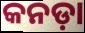
କନଡ଼ା